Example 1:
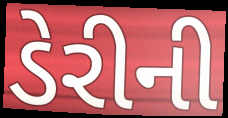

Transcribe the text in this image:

ડેરીની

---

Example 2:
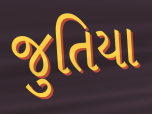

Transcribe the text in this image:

જુતિયા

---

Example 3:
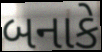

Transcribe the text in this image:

બનાકે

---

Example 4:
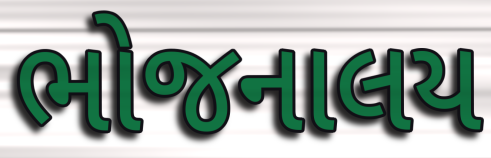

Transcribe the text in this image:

ભોજનાલય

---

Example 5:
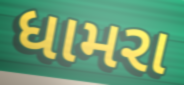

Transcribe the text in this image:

ધામરા